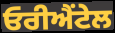
ਓਰੀਐਂਟੇਲ